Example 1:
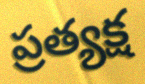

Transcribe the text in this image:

ప్రత్యక్ష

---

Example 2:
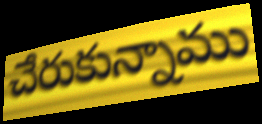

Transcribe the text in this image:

చేరుకున్నాము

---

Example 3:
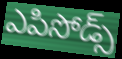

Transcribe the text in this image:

ఎపిసోడ్స్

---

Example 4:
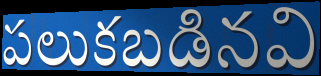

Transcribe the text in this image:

పలుకబడినవి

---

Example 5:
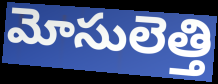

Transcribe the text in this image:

మోసులెత్తి